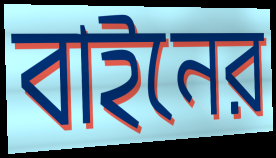
বাইনের